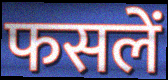
फसलें